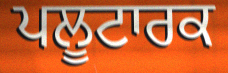
ਪਲੂਟਾਰਕ